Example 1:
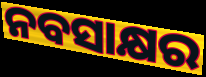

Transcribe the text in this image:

ନବସାକ୍ଷର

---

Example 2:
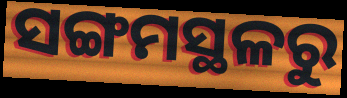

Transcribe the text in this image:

ସଙ୍ଗମସ୍ଥଳରୁ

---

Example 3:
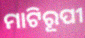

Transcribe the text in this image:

ମାଟିରୂପୀ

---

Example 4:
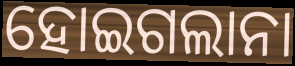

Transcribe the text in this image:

ହୋଇଗଲାନା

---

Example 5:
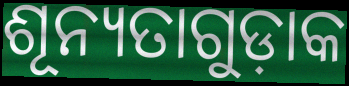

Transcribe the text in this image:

ଶୂନ୍ୟତାଗୁଡ଼ାକ